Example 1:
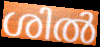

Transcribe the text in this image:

ശിൽ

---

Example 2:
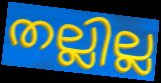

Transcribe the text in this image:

തല്ലില്ല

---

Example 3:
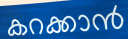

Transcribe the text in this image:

കറക്കാൻ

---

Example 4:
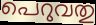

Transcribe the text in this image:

പെറുവതു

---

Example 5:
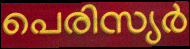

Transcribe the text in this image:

പെരിസ്യർ